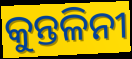
କୁନ୍ତଳିନୀ